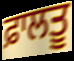
ਫ਼ਾਲਤੂ